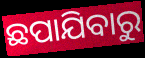
ଛପାଯିବାରୁ